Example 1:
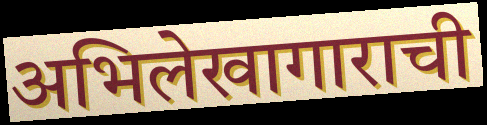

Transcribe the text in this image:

अभिलेखागाराची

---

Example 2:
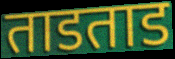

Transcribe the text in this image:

ताडताड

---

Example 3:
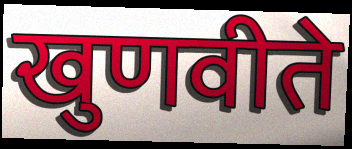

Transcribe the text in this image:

खुणवीते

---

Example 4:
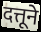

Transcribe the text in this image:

दत्तूने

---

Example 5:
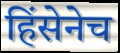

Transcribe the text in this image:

हिंसेनेच